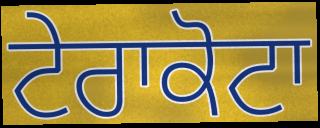
ਟੇਰਾਕੋਟਾ